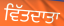
ਵਿੱਤਦਾਤਾ